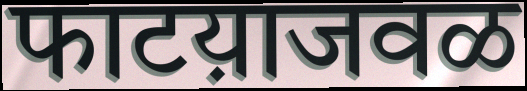
फाटय़ाजवळ